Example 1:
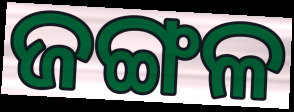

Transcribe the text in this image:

ଜଙ୍ଗଳ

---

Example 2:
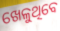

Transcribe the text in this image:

ଖେଳୁଥିବେ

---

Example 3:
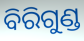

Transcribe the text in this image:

ବିରିଗୁଣ୍ଡ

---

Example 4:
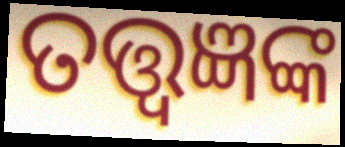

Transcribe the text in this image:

ତତ୍ତ୍ଵଜ୍ଞଙ୍କ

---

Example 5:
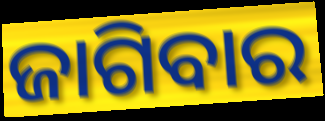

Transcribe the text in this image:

ଜାଗିବାର